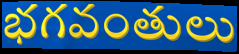
భగవంతులు